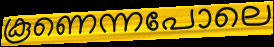
കൂണെന്നപോലെ